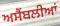
ਅਸੈਂਬਲੀਆਂ